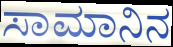
ಸಾಮಾನಿನ